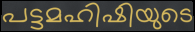
പട്ടമഹിഷിയുടെ